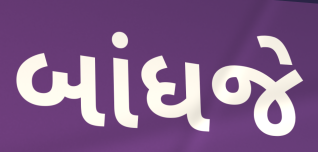
બાંધજે